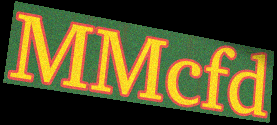
MMcfd